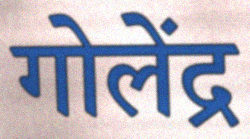
गोलेंद्र